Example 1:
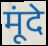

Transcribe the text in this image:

मूंदे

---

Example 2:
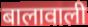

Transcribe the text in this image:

बालावाली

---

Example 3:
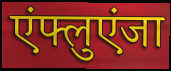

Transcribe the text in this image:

एंफ्लुएंजा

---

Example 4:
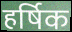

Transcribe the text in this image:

हर्षिक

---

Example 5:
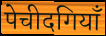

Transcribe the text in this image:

पेचीदगियाँ